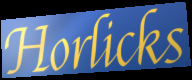
Horlicks